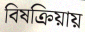
বিষক্রিয়ায়